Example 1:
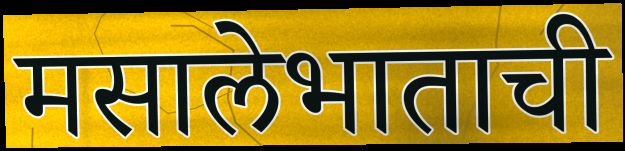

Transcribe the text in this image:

मसालेभाताची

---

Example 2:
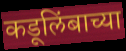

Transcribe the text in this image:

कडूलिंबाच्या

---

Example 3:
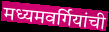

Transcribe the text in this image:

मध्यमवर्गियांची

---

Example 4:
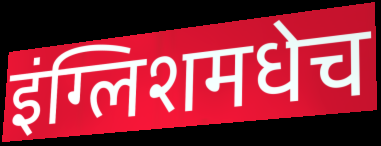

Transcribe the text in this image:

इंग्लिशमधेच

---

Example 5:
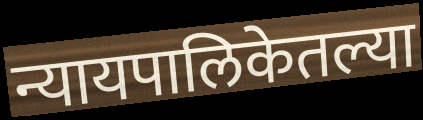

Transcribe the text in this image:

न्यायपालिकेतल्या